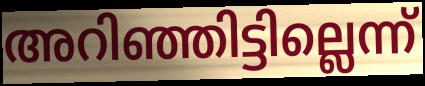
അറിഞ്ഞിട്ടില്ലെന്ന്